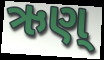
ઋણ્